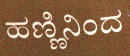
ಹಣ್ಣಿನಿಂದ